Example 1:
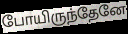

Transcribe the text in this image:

போயிருந்தேனே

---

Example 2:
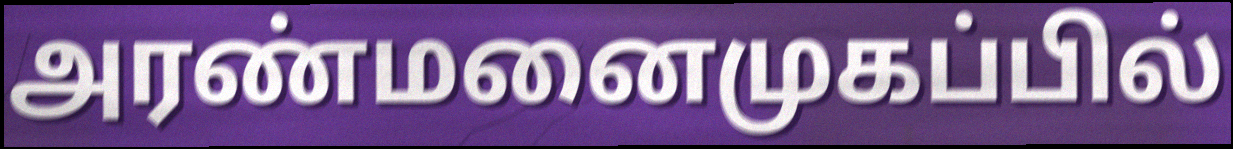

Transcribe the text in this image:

அரண்மனைமுகப்பில்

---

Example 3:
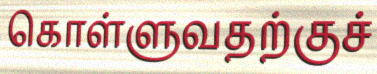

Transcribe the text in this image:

கொள்ளுவதற்குச்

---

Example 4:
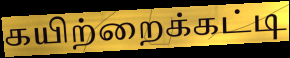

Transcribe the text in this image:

கயிற்றைக்கட்டி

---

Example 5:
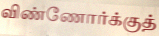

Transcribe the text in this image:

விண்ணோர்க்குத்